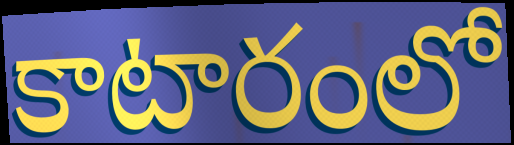
కాటారంలో